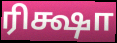
ரிக்ஷா